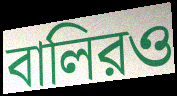
বালিরও